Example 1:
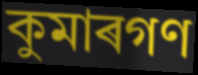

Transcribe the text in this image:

কুমাৰগণ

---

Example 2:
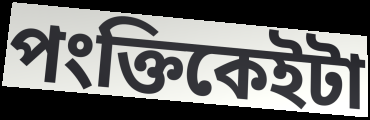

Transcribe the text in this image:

পংক্তিকেইটা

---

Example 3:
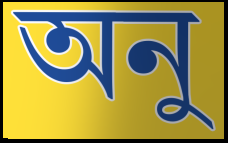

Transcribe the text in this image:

অনু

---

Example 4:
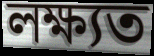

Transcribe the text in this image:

লক্ষ্যত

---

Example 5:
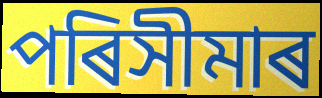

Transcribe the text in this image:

পৰিসীমাৰ